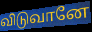
விடுவானே